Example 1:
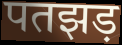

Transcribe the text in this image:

पतझड़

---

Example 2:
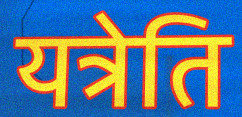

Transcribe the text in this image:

यत्रेति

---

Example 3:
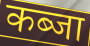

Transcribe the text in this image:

कब्जा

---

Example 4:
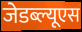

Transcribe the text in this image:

जेडब्ल्यूएस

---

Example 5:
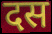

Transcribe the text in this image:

दस